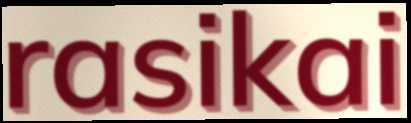
rasikai